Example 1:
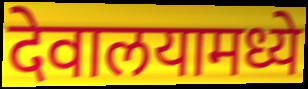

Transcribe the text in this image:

देवालयामध्ये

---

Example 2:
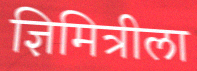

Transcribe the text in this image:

ज्ञिमित्रीला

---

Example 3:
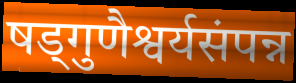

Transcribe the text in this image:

षड्‌गुणैश्वर्यसंपन्न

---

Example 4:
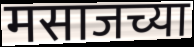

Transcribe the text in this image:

मसाजच्या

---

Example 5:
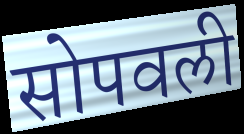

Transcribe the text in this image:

सोपवली